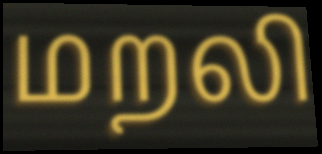
மறலி